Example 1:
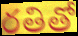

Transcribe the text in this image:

రతితో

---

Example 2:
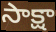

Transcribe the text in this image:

సాక్షా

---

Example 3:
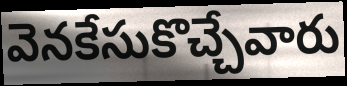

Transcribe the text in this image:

వెనకేసుకొచ్చేవారు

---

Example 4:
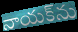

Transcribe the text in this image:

నాయక్‌ను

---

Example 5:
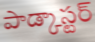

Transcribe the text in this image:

పాడ్కాస్టర్